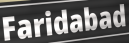
Faridabad